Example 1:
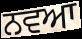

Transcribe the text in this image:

ਨਵਆ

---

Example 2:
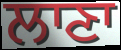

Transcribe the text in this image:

ਲਾਣਾ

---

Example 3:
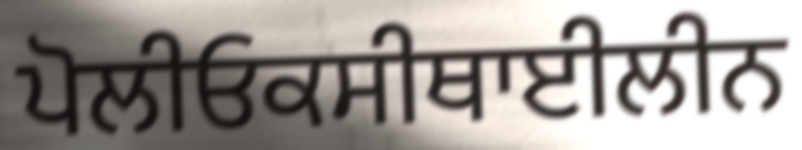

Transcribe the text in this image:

ਪੋਲੀਓਕਸੀਥਾਈਲੀਨ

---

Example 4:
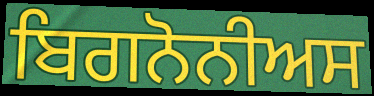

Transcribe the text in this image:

ਬਿਗਨੋਨੀਅਸ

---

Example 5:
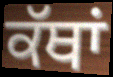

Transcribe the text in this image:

ਕੱਥਾਂ